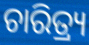
ଚାରିତ୍ର୍ୟ